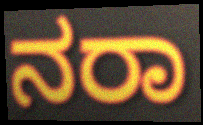
ನರಾ